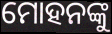
ମୋହନଙ୍କୁ